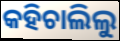
କହିଚାଲିଲୁ